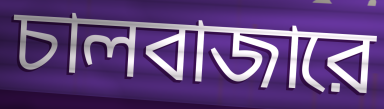
চালবাজারে